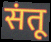
संतू